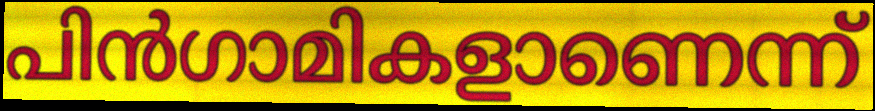
പിൻഗാമികളാണെന്ന്